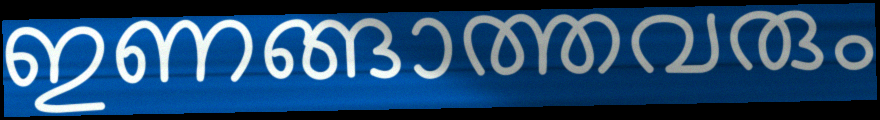
ഇണങ്ങാത്തവരും